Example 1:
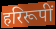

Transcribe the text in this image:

हरिरूपीं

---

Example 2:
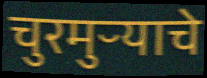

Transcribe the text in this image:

चुरमुऱ्याचे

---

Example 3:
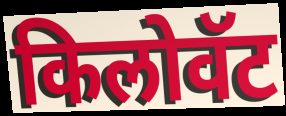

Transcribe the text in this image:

किलोवॅट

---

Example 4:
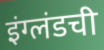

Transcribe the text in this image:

इंग्लंडची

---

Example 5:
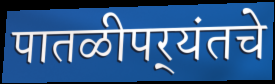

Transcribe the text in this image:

पातळीपर्यंतचे